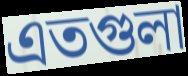
এতগুলা